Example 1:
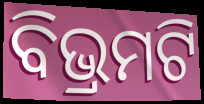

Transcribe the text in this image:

ବିଭ୍ରମଟି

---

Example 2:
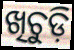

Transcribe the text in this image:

ଖିଚୁଡ଼ି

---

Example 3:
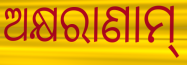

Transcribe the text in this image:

ଅକ୍ଷରାଣାମ୍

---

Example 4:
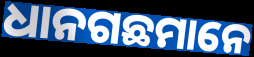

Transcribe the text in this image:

ଧାନଗଛମାନେ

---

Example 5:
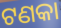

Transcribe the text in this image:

ଟଣକା